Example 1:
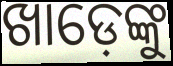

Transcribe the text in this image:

ଖାଡ଼େଙ୍କୁ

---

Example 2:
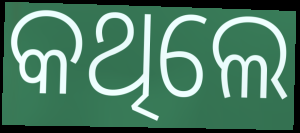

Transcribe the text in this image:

କଥିଲେ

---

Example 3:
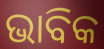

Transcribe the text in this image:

ଭାବିକ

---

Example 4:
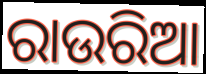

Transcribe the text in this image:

ରାଉରିଆ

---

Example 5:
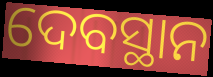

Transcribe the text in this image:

ଦେବସ୍ଥାନ